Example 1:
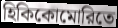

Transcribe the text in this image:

হিকিকোমোরিতে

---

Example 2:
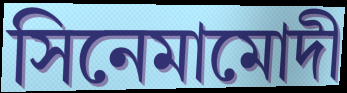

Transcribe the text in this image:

সিনেমামোদী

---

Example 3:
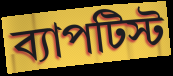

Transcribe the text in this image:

ব্যাপটিস্ট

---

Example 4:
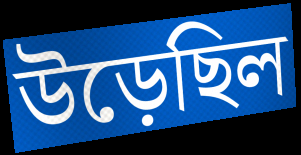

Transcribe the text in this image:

উড়েছিল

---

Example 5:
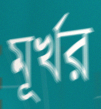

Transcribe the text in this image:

মূর্খর